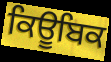
ਕਿਊਬਿਕ